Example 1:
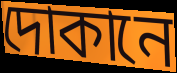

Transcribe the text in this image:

দোকানে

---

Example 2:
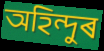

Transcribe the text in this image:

অহিন্দুৰ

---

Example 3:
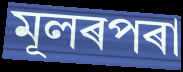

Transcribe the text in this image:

মূলৰপৰা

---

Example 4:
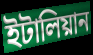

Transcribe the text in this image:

ইটালিয়ান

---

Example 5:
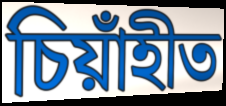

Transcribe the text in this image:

চিয়াঁহীত